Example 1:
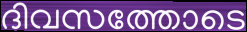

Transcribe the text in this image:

ദിവസത്തോടെ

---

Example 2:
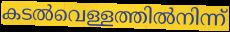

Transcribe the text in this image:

കടൽവെള്ളത്തിൽനിന്ന്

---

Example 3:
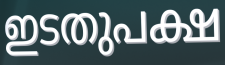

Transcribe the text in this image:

ഇടതുപക്ഷ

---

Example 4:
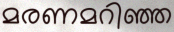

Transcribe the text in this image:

മരണമറിഞ്ഞ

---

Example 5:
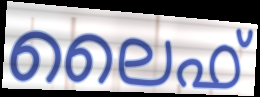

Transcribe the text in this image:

ലൈഫ്